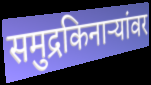
समुद्रकिनाऱ्यांवर